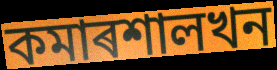
কমাৰশালখন